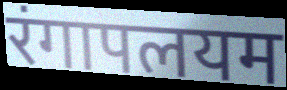
रंगापलयम